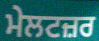
ਮੇਲਟਜ਼ਰ